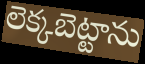
లెక్కబెట్టాను